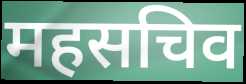
महसचिव